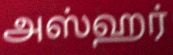
அஸ்ஹர்